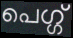
പെഗ്ഗ്